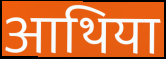
आथिया